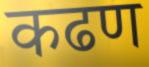
कढण